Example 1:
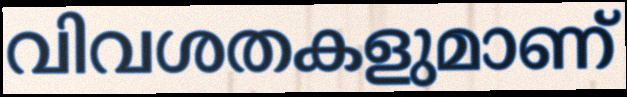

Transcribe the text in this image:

വിവശതകളുമാണ്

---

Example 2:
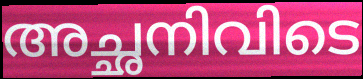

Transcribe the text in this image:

അച്ഛനിവിടെ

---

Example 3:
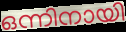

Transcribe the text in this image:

ഒന്നിനായി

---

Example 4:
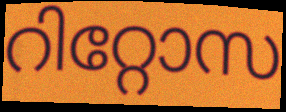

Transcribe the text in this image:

റിറ്റോസ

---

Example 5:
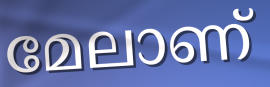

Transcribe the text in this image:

മേലാണ്